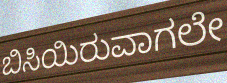
ಬಿಸಿಯಿರುವಾಗಲೇ